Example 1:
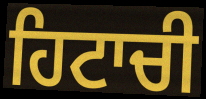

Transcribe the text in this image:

ਹਿਟਾਚੀ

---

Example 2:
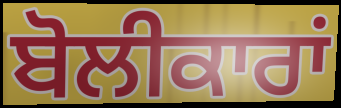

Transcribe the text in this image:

ਬੋਲੀਕਾਰਾਂ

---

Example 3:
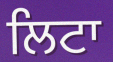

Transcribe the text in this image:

ਲਿਟਾ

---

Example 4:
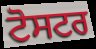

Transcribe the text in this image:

ਟੋਸਟਰ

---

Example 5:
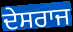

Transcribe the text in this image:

ਦੇਸਰਾਜ